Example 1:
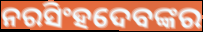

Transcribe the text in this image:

ନରସିଂହଦେବଙ୍କର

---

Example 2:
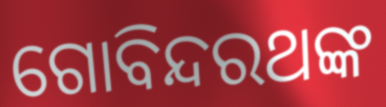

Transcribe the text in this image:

ଗୋବିନ୍ଦରଥଙ୍କ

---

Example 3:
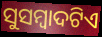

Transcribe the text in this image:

ସୁସମ୍ବାଦଟିଏ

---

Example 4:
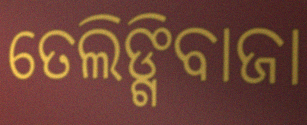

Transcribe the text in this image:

ତେଲିଙ୍ଗିବାଜା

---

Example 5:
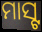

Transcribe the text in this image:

ମାସ୍ଟ